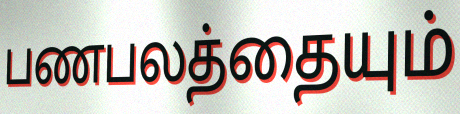
பணபலத்தையும்